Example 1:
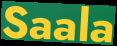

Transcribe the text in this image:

Saala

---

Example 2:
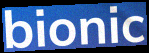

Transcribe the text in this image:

bionic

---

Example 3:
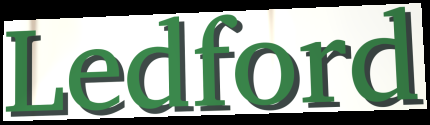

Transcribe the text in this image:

Ledford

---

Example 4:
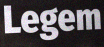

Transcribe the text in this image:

Legem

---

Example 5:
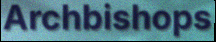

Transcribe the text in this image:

Archbishops